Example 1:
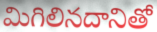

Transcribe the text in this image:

మిగిలినదానితో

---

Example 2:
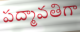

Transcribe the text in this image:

పద్మావతిగా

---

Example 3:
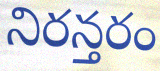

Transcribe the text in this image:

నిరన్తరం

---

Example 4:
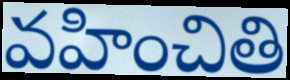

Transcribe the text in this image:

వహించితి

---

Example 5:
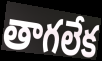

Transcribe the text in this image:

తాగలేక